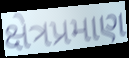
ક્ષેત્રપ્રમાણ